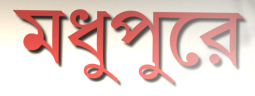
মধুপুরে